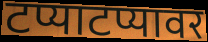
टप्याटप्यावर